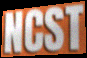
NCST